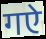
गऐ